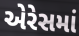
એરેસમાં